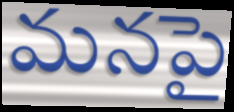
మనపై